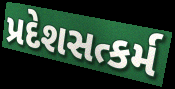
પ્રદેશસત્કર્મ